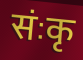
संःकृ